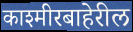
काश्मीरबाहेरील